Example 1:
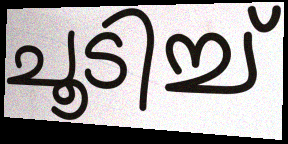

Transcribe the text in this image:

ചൂടിച്ച്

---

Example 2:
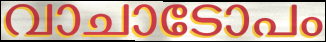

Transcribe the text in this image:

വാചാടോപം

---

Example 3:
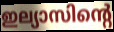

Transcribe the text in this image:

ഇല്യാസിന്റെ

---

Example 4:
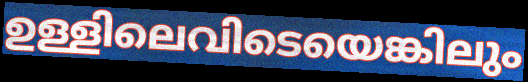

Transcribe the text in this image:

ഉള്ളിലെവിടെയെങ്കിലും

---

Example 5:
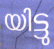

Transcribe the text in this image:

യിട്ടു